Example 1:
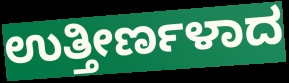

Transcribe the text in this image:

ಉತ್ತೀರ್ಣಳಾದ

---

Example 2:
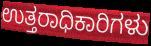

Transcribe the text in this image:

ಉತ್ತರಾಧಿಕಾರಿಗಳು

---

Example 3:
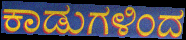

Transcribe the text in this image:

ಕಾಡುಗಳಿಂದ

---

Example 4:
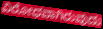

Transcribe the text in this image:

ವಿರೋಧವಾಗಿರುವುದು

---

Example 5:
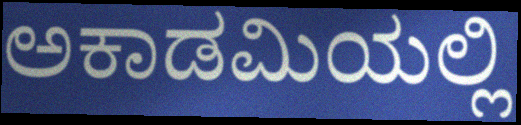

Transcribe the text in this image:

ಅಕಾಡಮಿಯಲ್ಲಿ